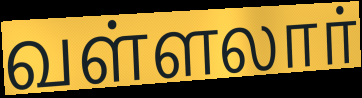
வள்ளலார்